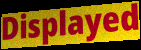
Displayed